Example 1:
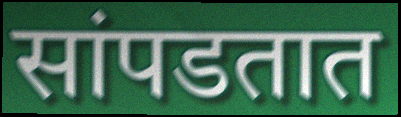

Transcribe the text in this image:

सांपडतात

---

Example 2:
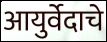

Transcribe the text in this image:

आयुर्वेदाचे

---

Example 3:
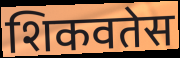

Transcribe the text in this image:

शिकवतेस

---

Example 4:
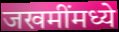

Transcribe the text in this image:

जखमींमध्ये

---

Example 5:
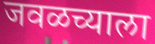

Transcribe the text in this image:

जवळच्याला